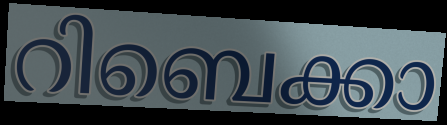
റിബെക്കാ